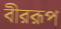
বীররূপ